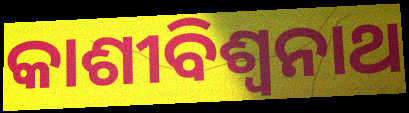
କାଶୀବିଶ୍ଵନାଥ